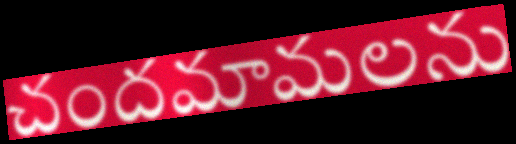
చందమామలను